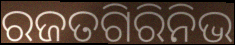
ରଜତଗିରିନିଭ